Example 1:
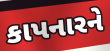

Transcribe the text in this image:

કાપનારને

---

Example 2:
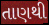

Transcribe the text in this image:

તાણથી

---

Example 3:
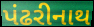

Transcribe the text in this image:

પંઢરીનાથ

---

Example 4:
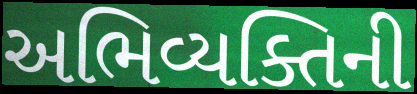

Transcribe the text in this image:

અભિવ્યક્તિની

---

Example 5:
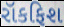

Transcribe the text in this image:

રૉકફિશ